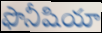
ఫొనీషియా